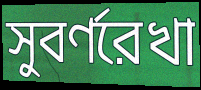
সুবর্ণরেখা